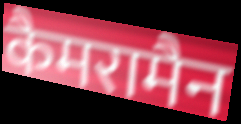
कैमरामैन